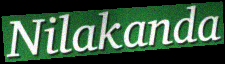
Nilakanda